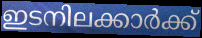
ഇടനിലക്കാർക്ക്